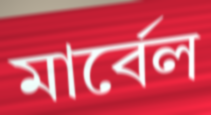
মার্বেল